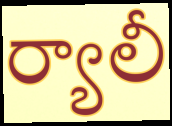
ర్యాలీ